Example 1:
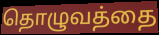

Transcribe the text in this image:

தொழுவத்தை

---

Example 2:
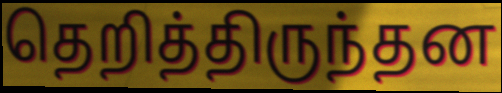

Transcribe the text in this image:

தெறித்திருந்தன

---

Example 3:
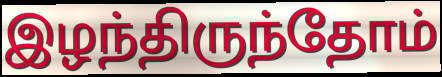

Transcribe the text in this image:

இழந்திருந்தோம்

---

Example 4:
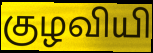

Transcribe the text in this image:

குழவியி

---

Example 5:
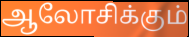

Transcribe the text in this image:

ஆலோசிக்கும்